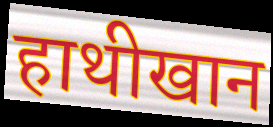
हाथीखान